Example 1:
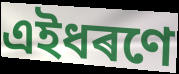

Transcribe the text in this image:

এইধৰণে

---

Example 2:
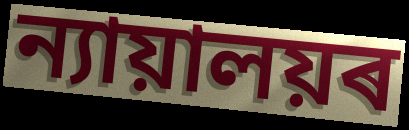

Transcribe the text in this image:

ন্যায়ালয়ৰ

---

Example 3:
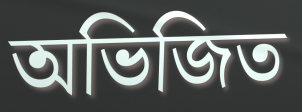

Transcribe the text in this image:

অভিজিত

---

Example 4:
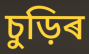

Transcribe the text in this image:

চুড়িৰ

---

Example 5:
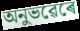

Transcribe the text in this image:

অনুভৱেৰে